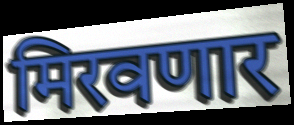
मिरवणार